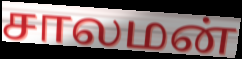
சாலமன்